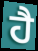
ਹੈ